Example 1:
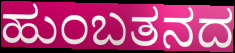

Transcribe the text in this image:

ಹುಂಬತನದ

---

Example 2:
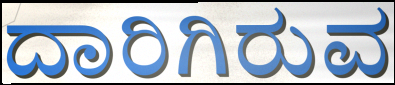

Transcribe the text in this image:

ದಾರಿಗಿರುವ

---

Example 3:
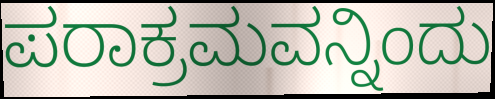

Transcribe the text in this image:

ಪರಾಕ್ರಮವನ್ನಿಂದು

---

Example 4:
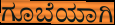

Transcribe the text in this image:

ಗೂಬೆಯಾಗಿ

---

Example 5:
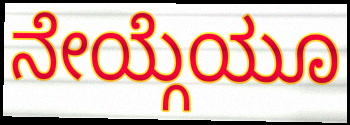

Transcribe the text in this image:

ನೇಯ್ಗೆಯೂ